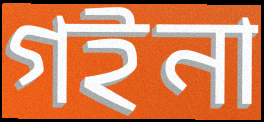
গইনা